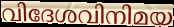
വിദേശവിനിമയ